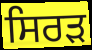
ਸਿਰੜ